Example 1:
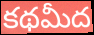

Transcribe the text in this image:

కథమీద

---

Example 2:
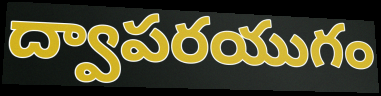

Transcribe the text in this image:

ద్వాపరయుగం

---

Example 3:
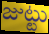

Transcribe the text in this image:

జుట్టు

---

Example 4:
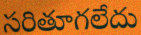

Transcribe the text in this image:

సరితూగలేదు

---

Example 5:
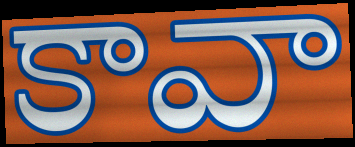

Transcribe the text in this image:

కావా